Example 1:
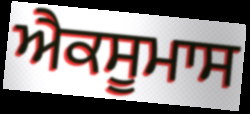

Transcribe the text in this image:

ਐਕਸੂਮਾਸ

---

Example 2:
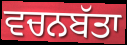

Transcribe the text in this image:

ਵਚਨਬੱਤਾ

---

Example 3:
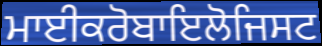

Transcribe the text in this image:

ਮਾਈਕਰੋਬਾਇਲੋਜਿਸਟ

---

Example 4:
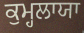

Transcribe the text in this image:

ਕੁਮ੍ਹਲਾਯਾ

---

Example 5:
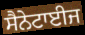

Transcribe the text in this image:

ਸੈਨੇਟਾਈਜ